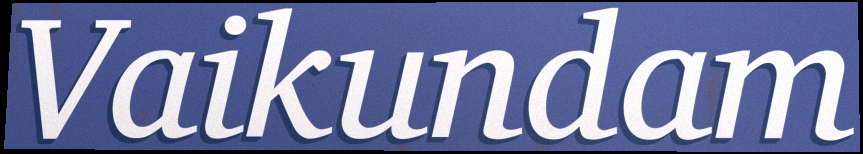
Vaikundam